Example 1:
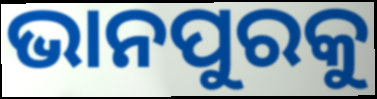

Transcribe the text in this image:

ଭାନପୁରକୁ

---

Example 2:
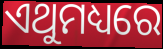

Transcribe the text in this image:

ଏଥୁମଧ୍ୟରେ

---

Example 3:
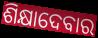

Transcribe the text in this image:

ଶିକ୍ଷାଦେବାର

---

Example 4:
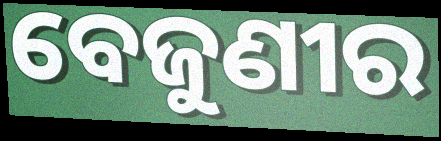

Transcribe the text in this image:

ବେଜୁଣୀର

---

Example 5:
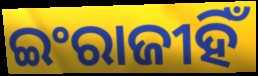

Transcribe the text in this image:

ଇଂରାଜୀହିଁ